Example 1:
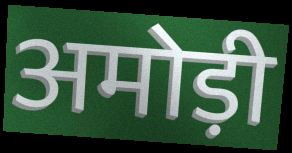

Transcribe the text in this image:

अमोड़ी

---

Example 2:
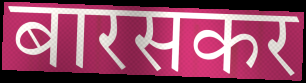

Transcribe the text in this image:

बारसकर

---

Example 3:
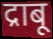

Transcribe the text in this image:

द्राबू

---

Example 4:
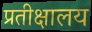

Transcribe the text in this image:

प्रतीक्षालय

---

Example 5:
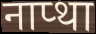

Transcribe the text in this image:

नाप्था